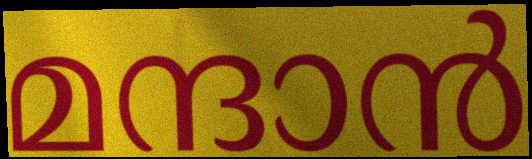
മന്ദാൻ